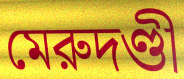
মেরুদণ্ডী